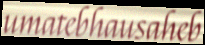
umatebhausaheb